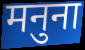
मनुना